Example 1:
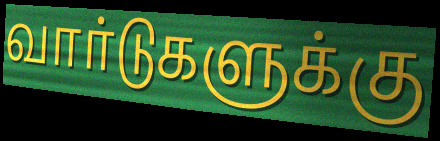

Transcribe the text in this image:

வார்டுகளுக்கு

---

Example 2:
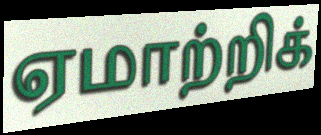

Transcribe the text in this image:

ஏமாற்றிக்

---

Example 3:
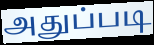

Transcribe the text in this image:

அதுப்படி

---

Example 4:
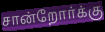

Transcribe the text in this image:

சான்றோர்க்கு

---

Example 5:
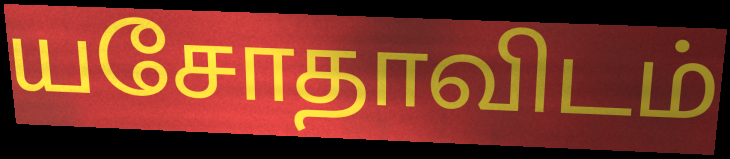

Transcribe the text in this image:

யசோதாவிடம்